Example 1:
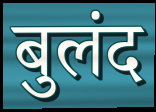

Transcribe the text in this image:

बुलंद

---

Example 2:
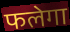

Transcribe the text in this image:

फलेगा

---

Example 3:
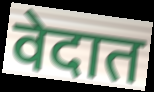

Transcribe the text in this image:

वेदात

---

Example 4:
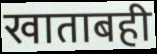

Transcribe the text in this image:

खाताबही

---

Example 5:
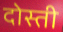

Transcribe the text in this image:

दोस्ती